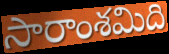
సారాంశమిది